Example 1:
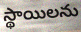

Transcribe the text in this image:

స్థాయిలను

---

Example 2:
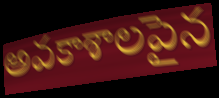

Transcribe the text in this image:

అవకాశాలపైన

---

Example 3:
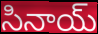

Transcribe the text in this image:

సినాయ్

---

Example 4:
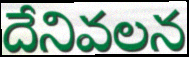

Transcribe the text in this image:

దేనివలన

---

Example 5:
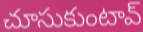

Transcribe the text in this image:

చూసుకుంటావ్